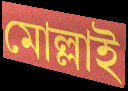
মোল্লাই